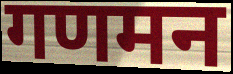
गणमन